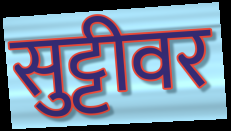
सुट्टीवर